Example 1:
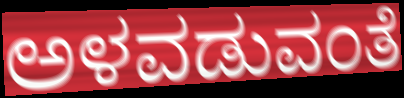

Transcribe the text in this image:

ಅಳವಡುವಂತೆ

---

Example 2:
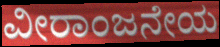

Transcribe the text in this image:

ವೀರಾಂಜನೇಯ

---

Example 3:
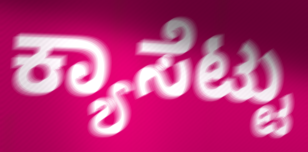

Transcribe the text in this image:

ಕ್ಯಾಸೆಟ್ಟು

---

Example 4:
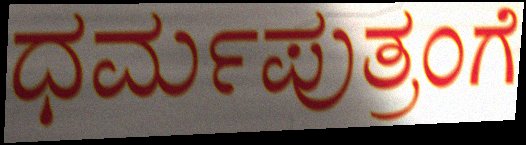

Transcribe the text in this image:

ಧರ್ಮಪುತ್ರಂಗೆ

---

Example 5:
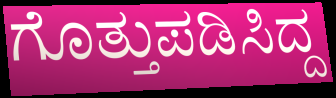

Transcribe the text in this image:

ಗೊತ್ತುಪಡಿಸಿದ್ದ